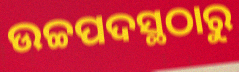
ଉଚ୍ଚପଦସ୍ଥଠାରୁ